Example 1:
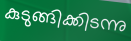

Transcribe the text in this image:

കുടുങ്ങിക്കിടന്നു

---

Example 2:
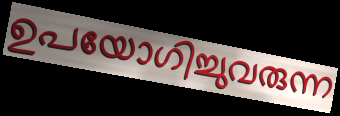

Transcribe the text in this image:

ഉപയോഗിച്ചുവരുന്ന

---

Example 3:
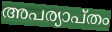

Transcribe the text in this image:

അപര്യാപ്തം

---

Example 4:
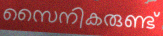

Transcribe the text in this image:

സൈനികരുണ്ട്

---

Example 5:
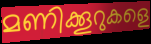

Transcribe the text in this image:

മണിക്കൂറുകളെ